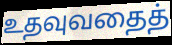
உதவுவதைத்